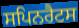
ਸਪਿਨਰੈਟਸ